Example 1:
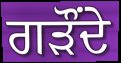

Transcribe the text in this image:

ਗੜੌਂਦੇ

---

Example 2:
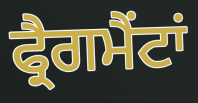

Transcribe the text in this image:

ਫ੍ਰੈਗਮੈਂਟਾਂ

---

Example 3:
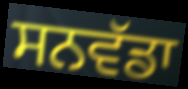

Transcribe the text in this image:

ਸਨਵੱਡਾ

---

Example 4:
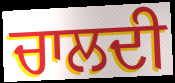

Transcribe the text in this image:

ਚਾਲਦੀ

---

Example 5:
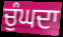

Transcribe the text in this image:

ਚੁੰਘਦਾ